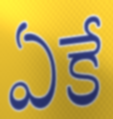
ఏకే